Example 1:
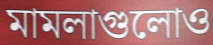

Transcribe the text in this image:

মামলাগুলোও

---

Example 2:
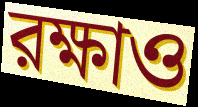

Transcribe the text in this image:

রক্ষাও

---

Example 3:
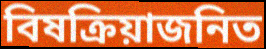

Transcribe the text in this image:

বিষক্রিয়াজনিত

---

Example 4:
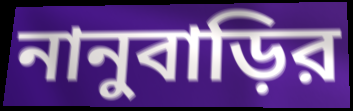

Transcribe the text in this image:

নানুবাড়ির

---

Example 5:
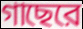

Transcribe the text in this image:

গাছেরে